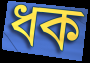
ধক